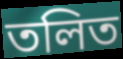
তলিত